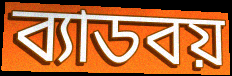
ব্যাডবয়